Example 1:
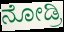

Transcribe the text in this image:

ನೋಡ್ರಿ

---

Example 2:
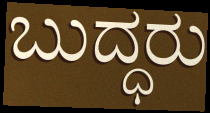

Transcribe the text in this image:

ಬುದ್ಧರು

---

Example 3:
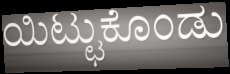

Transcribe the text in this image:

ಯಿಟ್ಟುಕೊಂಡು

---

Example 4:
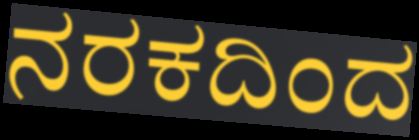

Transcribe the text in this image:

ನರಕದಿಂದ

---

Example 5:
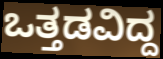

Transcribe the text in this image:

ಒತ್ತಡವಿದ್ದ